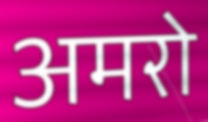
अमरो